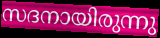
സദനായിരുന്നു